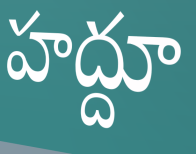
హద్దూ